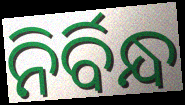
ନିର୍ବିନ୍ଧ